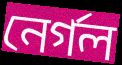
নের্গল